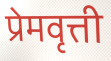
प्रेमवृत्ती